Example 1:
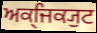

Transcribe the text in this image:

ਅਕ੍ਜਿਕ੍ਯੁਟ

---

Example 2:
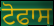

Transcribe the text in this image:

ਟੋਫਾਸ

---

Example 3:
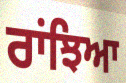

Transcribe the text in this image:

ਰਾਂਝਿਆ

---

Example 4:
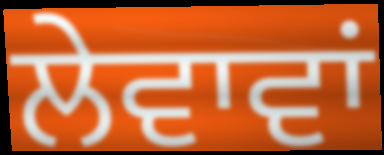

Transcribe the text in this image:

ਲੇਵਾਵਾਂ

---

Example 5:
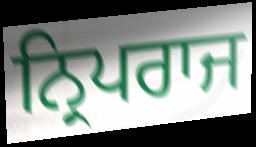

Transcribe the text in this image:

ਨ੍ਰਿਪਰਾਜ